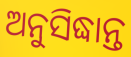
ଅନୁସିଦ୍ଧାନ୍ତ